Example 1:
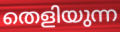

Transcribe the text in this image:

തെളിയുന്ന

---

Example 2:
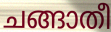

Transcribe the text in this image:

ചങ്ങാതീ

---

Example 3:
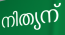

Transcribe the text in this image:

നിത്യന്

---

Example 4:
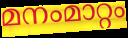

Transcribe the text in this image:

മനംമാറ്റം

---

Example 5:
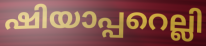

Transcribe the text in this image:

ഷിയാപ്പറെല്ലി